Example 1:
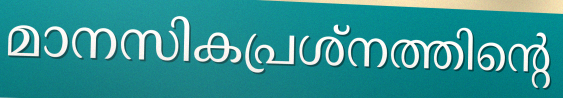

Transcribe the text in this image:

മാനസികപ്രശ്നത്തിന്റെ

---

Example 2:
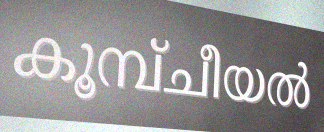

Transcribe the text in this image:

കൂമ്പ്ചീയൽ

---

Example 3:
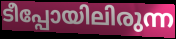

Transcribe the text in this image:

ടീപ്പോയിലിരുന്ന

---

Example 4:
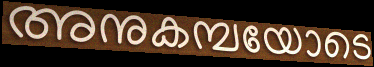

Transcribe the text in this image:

അനുകമ്പയോടെ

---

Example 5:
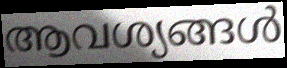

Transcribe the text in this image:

ആവശ്യങ്ങൾ